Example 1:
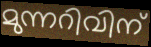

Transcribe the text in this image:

മുന്നറിവിന്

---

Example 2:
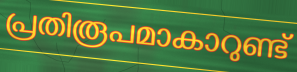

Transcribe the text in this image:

പ്രതിരൂപമാകാറുണ്ട്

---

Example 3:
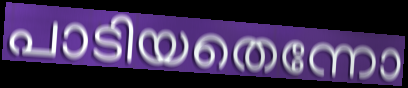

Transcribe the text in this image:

പാടിയതെന്നോ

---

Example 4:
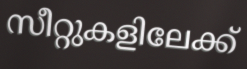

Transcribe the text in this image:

സീറ്റുകളിലേക്ക്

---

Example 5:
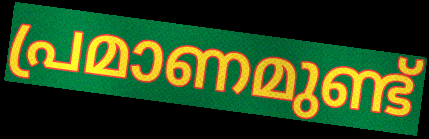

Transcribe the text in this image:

പ്രമാണമുണ്ട്